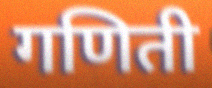
गणिती